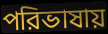
পরিভাষায়